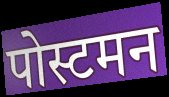
पोस्टमन